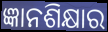
ଜ୍ଞାନଶିକ୍ଷାର